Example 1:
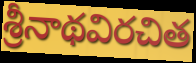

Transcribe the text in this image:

శ్రీనాథవిరచిత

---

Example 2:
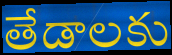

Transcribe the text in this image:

తేడాలకు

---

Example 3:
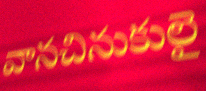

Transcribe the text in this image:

వానచినుకులై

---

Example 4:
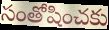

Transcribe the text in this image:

సంతోషించకు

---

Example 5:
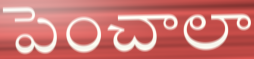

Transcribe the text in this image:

పెంచాలా